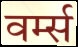
वर्म्स